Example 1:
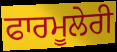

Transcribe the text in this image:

ਫਾਰਮੂਲੇਰੀ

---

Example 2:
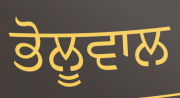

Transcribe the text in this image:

ਭੋਲੂਵਾਲ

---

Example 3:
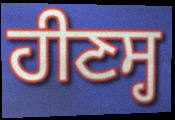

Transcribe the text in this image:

ਹੀਣਸ੍ਹ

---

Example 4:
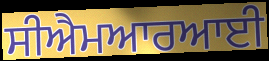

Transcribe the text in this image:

ਸੀਐਮਆਰਆਈ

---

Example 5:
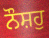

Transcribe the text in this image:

ਨੌਸ਼ਹੁ